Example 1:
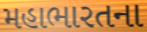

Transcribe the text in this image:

મહાભારતના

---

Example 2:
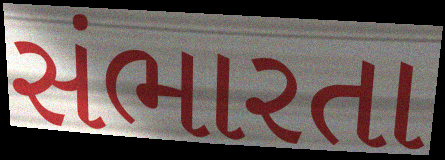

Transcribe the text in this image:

સંભારતા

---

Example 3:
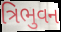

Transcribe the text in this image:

ત્રિભુવન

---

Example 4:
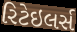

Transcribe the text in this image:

રિટેઇલર્સ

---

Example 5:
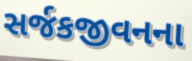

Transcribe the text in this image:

સર્જકજીવનના